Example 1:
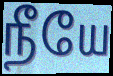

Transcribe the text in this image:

நீயே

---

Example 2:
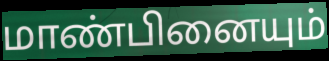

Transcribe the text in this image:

மாண்பினையும்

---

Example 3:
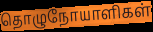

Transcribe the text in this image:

தொழுநோயாளிகள்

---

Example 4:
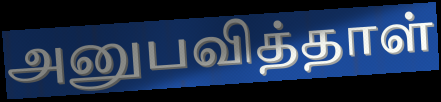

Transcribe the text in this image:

அனுபவித்தாள்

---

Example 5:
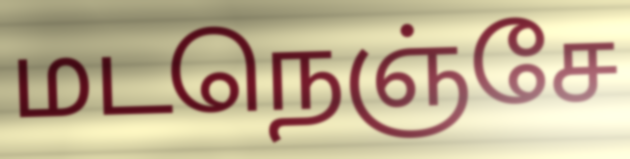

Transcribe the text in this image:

மடநெஞ்சே